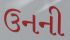
ઉનની